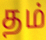
தம்